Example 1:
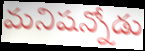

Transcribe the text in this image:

మనిషన్నోడు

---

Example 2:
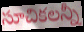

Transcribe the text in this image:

సూచికలన్నీ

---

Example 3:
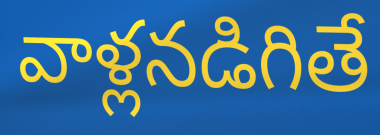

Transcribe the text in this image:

వాళ్లనడిగితే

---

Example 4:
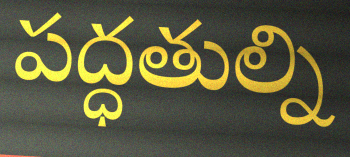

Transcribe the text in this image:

పద్ధతుల్ని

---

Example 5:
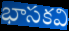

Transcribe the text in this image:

భాసకవి